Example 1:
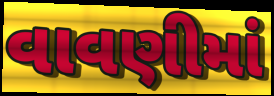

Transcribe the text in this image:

વાવણીમાં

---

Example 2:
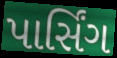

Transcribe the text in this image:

પાર્સિંગ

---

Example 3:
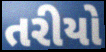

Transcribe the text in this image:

તરીયો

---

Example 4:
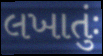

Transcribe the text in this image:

લખાતુંઃ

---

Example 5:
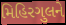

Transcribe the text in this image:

મિહિરગુલને